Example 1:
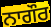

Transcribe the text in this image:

ਨਾਗੌਰ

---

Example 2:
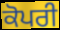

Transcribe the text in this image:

ਕੋਪਰੀ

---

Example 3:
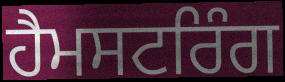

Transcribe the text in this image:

ਹੈਮਸਟਰਿੰਗ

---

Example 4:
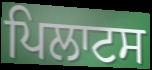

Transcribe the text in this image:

ਪਿਲਾਟਸ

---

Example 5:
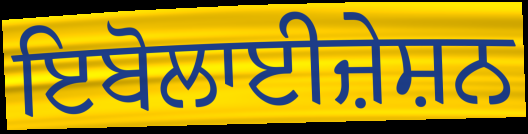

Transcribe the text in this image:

ਇਬੋਲਾਈਜ਼ੇਸ਼ਨ